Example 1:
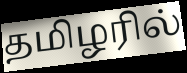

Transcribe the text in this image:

தமிழரில்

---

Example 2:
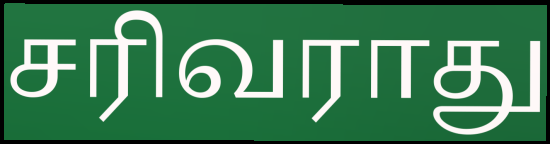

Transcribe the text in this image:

சரிவராது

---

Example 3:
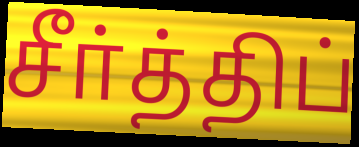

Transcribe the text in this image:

சீர்த்திப்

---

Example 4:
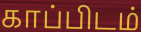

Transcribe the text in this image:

காப்பிடம்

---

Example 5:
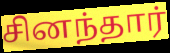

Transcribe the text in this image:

சினந்தார்